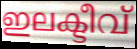
ഇലക്ടീവ്